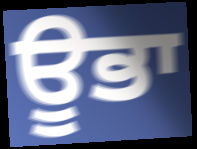
ਊਭਾ